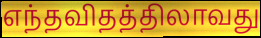
எந்தவிதத்திலாவது